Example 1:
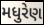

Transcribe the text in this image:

મધુરેણ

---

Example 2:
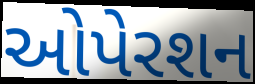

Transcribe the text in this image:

ઓપેરશન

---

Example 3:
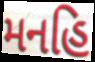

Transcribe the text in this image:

મનહિ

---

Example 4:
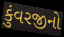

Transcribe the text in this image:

કુંવરજીનો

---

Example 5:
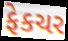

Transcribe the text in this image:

ફેકચર